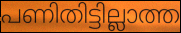
പണിതിട്ടില്ലാത്ത